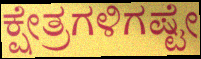
ಕ್ಷೇತ್ರಗಳಿಗಷ್ಟೇ